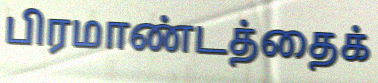
பிரமாண்டத்தைக்